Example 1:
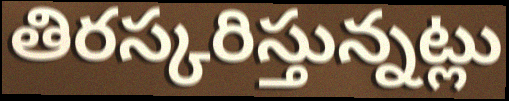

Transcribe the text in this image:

తిరస్కరిస్తున్నట్లు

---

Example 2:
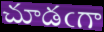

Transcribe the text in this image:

చూడఁగా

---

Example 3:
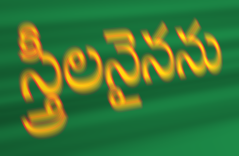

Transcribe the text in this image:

స్త్రీలనైనను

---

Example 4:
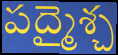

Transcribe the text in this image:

పద్మైశ్చ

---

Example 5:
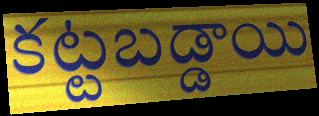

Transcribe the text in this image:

కట్టబడ్డాయి